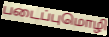
படைப்புமொழி